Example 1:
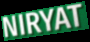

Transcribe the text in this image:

NIRYAT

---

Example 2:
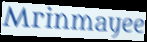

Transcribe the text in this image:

Mrinmayee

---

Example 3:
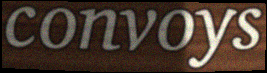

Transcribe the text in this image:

convoys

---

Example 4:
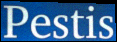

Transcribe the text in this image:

Pestis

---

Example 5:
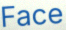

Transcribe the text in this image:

Face